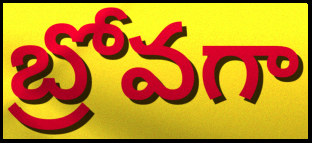
బ్రోవగా